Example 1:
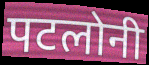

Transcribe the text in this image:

पटलोनी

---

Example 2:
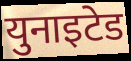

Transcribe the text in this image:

युनाइटेड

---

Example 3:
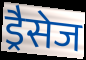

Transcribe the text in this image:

ड्रैसेज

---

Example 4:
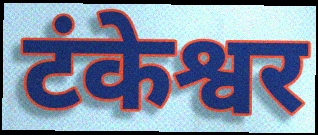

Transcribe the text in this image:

टंकेश्वर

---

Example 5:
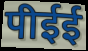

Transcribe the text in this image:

पीईई